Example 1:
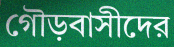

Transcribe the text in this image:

গৌড়বাসীদের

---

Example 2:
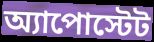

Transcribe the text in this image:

অ্যাপোস্টেট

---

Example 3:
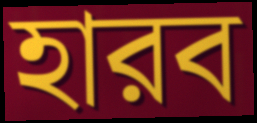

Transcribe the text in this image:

হারব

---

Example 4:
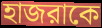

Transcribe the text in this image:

হাজরাকে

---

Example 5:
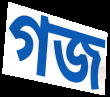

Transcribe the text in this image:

গজ